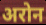
अरोन